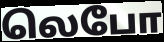
லெபோ